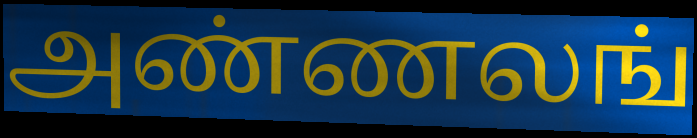
அண்ணலங்